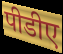
पीडीए